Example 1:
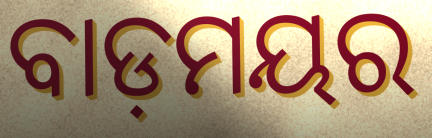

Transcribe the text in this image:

ବାଡ଼ମୟର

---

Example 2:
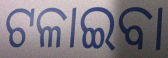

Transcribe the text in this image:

ଟଳାଇବା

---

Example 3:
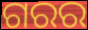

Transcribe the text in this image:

ଗରର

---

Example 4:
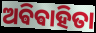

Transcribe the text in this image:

ଅଵିଵାହିତା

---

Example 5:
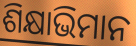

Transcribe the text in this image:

ଶିକ୍ଷାଭିମାନ